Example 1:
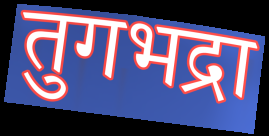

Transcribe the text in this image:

तुगभद्रा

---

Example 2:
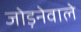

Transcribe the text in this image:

जोड़नेवाले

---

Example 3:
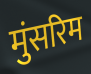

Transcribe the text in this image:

मुंसरिम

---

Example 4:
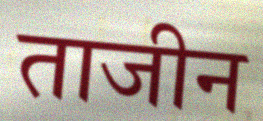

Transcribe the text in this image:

ताजीन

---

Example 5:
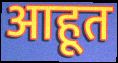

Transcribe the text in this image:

आहूत